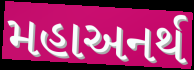
મહાઅનર્થ